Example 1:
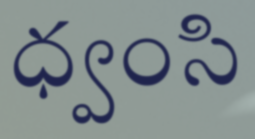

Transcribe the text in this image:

ధ్వంసి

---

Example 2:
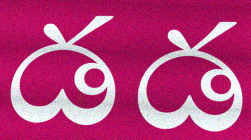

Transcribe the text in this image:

డడ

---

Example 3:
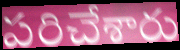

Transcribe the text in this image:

పరిచేశారు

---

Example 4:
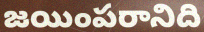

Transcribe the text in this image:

జయింపరానిది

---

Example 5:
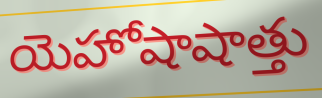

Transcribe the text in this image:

యెహోషాషాత్తు